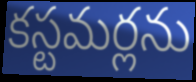
కస్టమర్లను